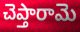
చెప్తారామె